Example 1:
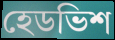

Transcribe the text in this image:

হেডভিশ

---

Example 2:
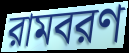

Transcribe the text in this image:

রামবরণ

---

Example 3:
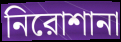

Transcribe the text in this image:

নিরোশানা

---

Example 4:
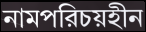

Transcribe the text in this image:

নামপরিচয়হীন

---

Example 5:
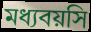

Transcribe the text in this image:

মধ্যবয়সি